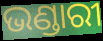
ଭଣ୍ଡାରୀ